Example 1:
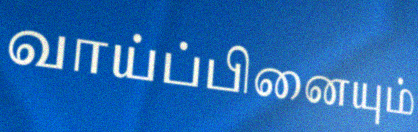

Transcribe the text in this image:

வாய்ப்பினையும்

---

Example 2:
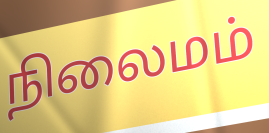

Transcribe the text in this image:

நிலைமம்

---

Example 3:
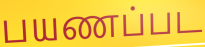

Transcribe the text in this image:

பயணப்பட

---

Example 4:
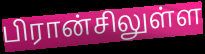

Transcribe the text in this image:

பிரான்சிலுள்ள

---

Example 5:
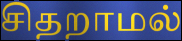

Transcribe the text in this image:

சிதறாமல்